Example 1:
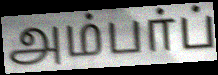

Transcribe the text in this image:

அம்பர்ப்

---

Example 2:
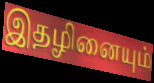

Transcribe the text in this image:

இதழினையும்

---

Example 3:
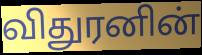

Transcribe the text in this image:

விதுரனின்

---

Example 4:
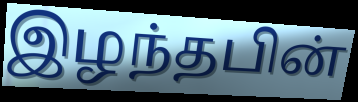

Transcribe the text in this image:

இழந்தபின்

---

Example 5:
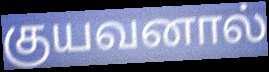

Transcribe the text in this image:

குயவனால்